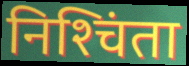
निश्चिंता